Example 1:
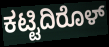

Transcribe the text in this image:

ಕಟ್ಟಿದಿರೊಳ್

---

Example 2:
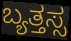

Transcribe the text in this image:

ಬ್ಯತ್ತಸ್ಸ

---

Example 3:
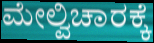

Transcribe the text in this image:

ಮೇಲ್ವಿಚಾರಕ್ಕೆ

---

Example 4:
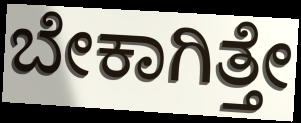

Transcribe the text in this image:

ಬೇಕಾಗಿತ್ತೇ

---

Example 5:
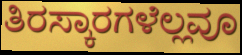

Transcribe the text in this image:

ತಿರಸ್ಕಾರಗಳೆಲ್ಲವೂ